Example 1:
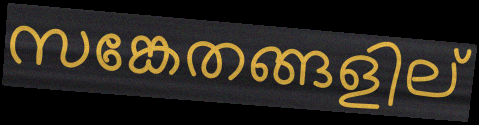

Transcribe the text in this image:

സങ്കേതങ്ങളില്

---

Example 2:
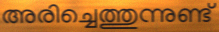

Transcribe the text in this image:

അരിച്ചെത്തുന്നുണ്ട്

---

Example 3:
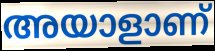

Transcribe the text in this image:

അയാളാണ്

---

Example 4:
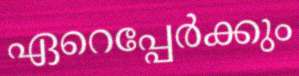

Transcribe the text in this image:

ഏറെപ്പേർക്കും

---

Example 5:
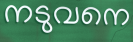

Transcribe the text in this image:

നടുവനെ